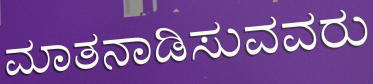
ಮಾತನಾಡಿಸುವವರು